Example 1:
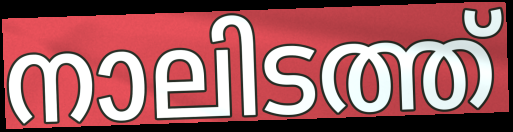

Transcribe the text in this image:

നാലിടത്ത്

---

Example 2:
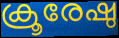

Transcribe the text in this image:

ക്രൂരേഷു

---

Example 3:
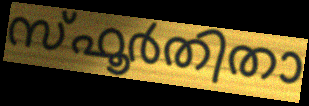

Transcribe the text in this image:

സ്ഫൂർതിതാ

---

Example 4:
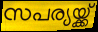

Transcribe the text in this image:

സപര്യയ്ക്ക്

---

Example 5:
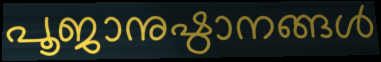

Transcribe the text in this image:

പൂജാനുഷ്ഠാനങ്ങൾ